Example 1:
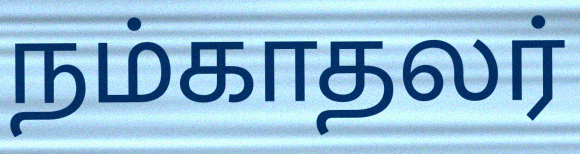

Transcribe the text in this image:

நம்காதலர்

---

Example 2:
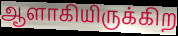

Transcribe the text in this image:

ஆளாகியிருக்கிற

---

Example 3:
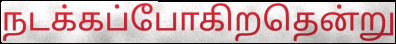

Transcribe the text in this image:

நடக்கப்போகிறதென்று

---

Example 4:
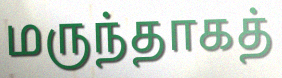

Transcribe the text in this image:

மருந்தாகத்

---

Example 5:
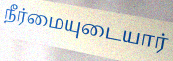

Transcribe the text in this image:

நீர்மையுடையார்